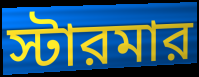
স্টারমার